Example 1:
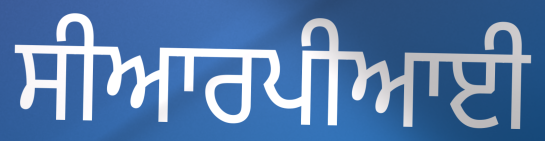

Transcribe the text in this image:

ਸੀਆਰਪੀਆਈ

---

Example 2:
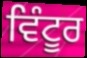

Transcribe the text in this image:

ਵਿੰਟੂਰ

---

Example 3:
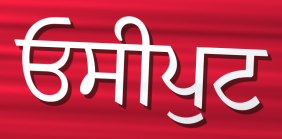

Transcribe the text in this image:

ਓਸੀਪੁਟ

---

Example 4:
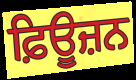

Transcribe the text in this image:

ਫ਼ਿਊਜ਼ਨ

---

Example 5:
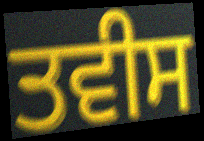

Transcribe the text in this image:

ਤਵੀਸ